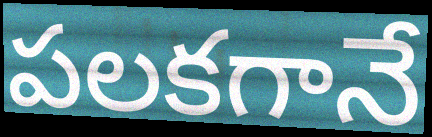
పలకగానే